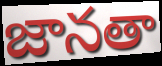
జానతా